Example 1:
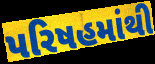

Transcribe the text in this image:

પરિષહમાંથી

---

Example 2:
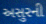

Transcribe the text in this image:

અસુરની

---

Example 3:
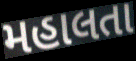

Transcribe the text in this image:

મહાલતા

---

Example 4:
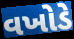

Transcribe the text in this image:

વખોડે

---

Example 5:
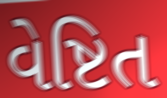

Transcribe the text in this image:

વેષ્ટિત